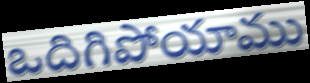
ఒదిగిపోయాము